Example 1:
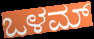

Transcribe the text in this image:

ಒಳಮ್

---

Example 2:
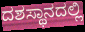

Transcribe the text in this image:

ದಶಸ್ಥಾನದಲ್ಲಿ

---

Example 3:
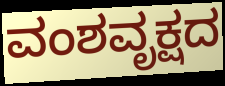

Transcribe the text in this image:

ವಂಶವೃಕ್ಷದ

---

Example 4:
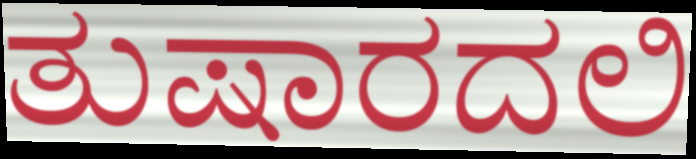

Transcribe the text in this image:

ತುಷಾರದಲಿ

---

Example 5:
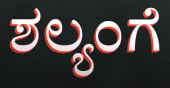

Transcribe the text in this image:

ಶಲ್ಯಂಗೆ